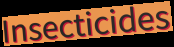
Insecticides